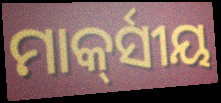
ମାର୍କ୍‍ସୀୟ